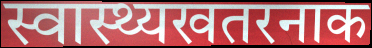
स्वास्थ्यखतरनाक